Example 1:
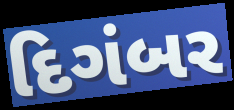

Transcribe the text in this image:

દિગંબર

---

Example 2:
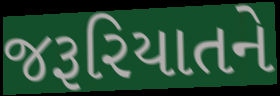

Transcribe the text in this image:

જરૂરિયાતને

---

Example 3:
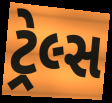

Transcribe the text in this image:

ટ્રેલ્સ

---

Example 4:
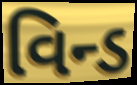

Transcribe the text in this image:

વિન્ડ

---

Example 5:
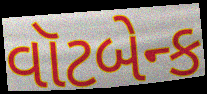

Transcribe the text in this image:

વૉટબેન્ક